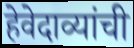
हेवेदाव्यांची